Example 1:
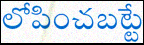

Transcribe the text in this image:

లోపించబట్టే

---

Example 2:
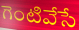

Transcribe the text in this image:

గెంటివేసే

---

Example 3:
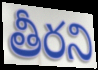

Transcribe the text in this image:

తీరని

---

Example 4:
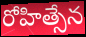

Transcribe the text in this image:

రోహిత్సేన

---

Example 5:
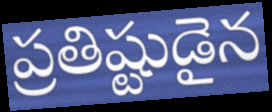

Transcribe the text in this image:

ప్రతిష్టుడైన